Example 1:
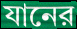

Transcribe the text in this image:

যানের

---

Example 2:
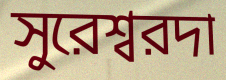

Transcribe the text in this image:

সুরেশ্বরদা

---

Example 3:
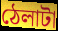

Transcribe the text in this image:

ঠেলাটা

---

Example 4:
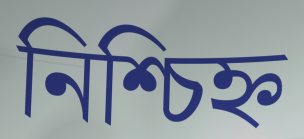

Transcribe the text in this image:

নিশ্চিহ্ন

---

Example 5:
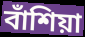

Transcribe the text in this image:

বাঁশিয়া